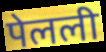
पेलली